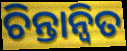
ଚିନ୍ତାନ୍ୱିତ